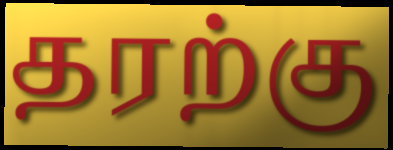
தரற்கு